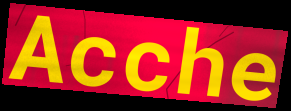
Acche